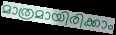
മാത്രമായിരിക്കാം